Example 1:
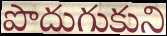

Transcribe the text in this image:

పొదుగుకుని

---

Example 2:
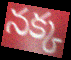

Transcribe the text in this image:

నక్క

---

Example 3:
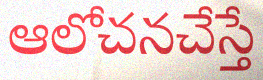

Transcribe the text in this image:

ఆలోచనచేస్తే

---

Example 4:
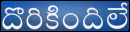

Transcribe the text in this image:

దొరికిందిలే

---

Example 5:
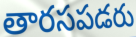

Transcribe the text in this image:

తారసపడరు